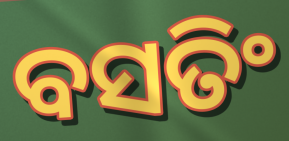
ବସତିଂ